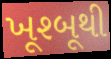
ખૂશ્બૂથી